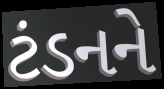
ટંડનને